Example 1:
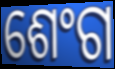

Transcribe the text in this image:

ଶେଂଗ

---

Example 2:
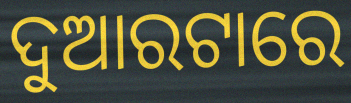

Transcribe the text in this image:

ଦୁଆରଟାରେ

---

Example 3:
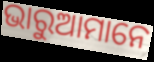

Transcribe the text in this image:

ଭାରୁଆମାନେ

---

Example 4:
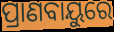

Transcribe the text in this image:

ପ୍ରାଣବାୟୁରେ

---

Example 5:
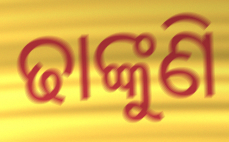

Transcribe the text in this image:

ଢାଙ୍କୁଣି